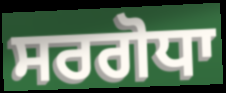
ਸਰਗੋਧਾ